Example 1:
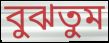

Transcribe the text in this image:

বুঝতুম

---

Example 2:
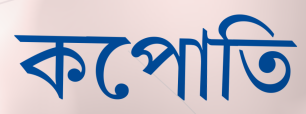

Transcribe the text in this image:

কপোতি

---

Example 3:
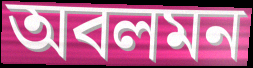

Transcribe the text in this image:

অবলমন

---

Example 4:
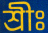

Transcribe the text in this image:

শ্রীঃ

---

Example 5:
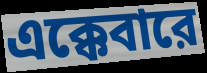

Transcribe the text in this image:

এক্কেবারে